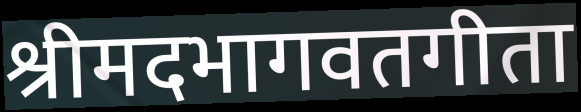
श्रीमदभागवतगीता